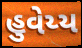
હુવેય્ય